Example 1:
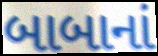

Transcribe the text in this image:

બાબાનાં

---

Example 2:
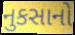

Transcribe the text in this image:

નુકસાનો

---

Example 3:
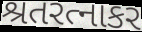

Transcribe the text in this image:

શ્રતરત્નાકર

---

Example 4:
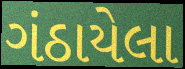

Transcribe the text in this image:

ગંઠાયેલા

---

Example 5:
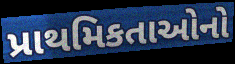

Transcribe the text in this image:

પ્રાથમિકતાઓનો